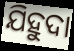
ଯିହୁଦା